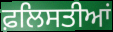
ਫ਼ਲਿਸਤੀਆਂ